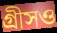
গ্রীসও